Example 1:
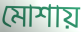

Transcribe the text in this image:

মোশায়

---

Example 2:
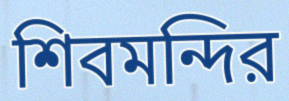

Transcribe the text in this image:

শিবমন্দির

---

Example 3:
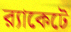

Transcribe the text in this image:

র‍্যাকেটে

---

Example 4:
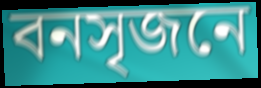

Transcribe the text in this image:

বনসৃজনে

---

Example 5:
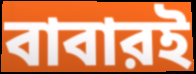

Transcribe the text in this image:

বাবারই